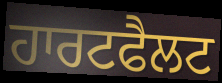
ਹਾਰਟਫੈਲਟ